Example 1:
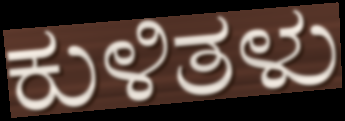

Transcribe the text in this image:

ಕುಳಿತಳು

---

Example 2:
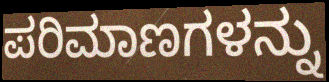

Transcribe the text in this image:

ಪರಿಮಾಣಗಳನ್ನು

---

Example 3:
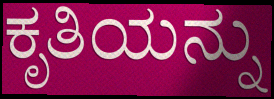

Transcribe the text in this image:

ಕೃತಿಯನ್ನು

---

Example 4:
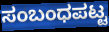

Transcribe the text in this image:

ಸಂಬಂಧಪಟ್ಟ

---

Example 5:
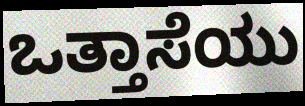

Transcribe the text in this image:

ಒತ್ತಾಸೆಯು